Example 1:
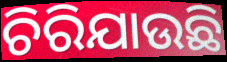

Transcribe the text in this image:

ଚିରିଯାଉଛି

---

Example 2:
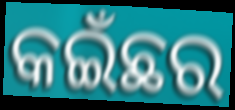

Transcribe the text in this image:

କଇଁଛର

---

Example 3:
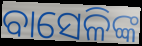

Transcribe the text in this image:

ବାସେଳିଙ୍କ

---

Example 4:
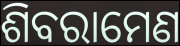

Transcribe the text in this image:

ଶିବରାମେଣ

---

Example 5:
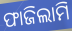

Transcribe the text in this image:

ଫାଜିଲାମି